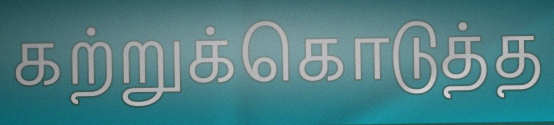
கற்றுக்கொடுத்த